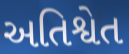
અતિશ્વેત